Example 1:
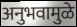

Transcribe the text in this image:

अनुभवामुळे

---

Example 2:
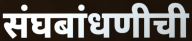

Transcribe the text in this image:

संघबांधणीची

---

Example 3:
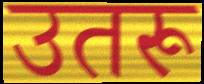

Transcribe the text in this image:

उतरू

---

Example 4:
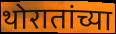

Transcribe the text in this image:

थोरातांच्या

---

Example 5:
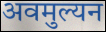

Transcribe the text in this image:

अवमुल्यन